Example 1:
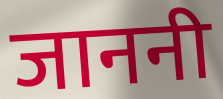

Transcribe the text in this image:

जाननी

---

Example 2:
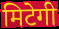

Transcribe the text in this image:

मिटेगी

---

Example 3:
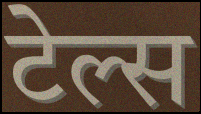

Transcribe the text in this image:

टेल्स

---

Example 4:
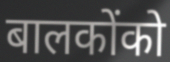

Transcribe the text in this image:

बालकोंको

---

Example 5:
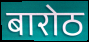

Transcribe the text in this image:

बारोठ